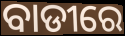
ବାଡୀରେ